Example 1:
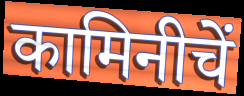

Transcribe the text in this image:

कामिनीचें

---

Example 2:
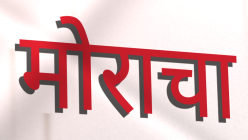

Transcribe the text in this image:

मोराचा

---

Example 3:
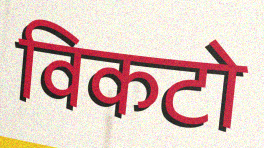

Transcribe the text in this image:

विकटो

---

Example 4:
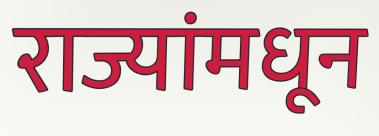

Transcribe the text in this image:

राज्यांमधून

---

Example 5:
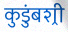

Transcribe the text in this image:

कुडुंबश्री